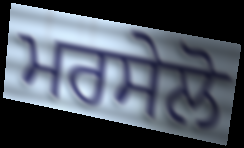
ਮਰਸੇਲੋ